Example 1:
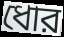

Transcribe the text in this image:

ধোর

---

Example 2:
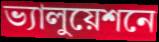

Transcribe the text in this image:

ভ্যালুয়েশনে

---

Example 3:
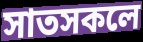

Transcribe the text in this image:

সাতসকলে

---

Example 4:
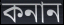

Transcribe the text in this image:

কনান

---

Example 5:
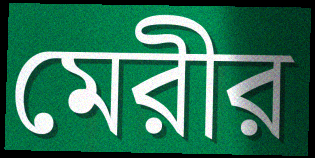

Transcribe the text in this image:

মেরীর